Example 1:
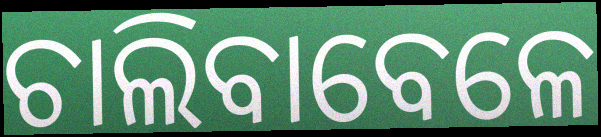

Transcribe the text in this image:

ଚାଲିବାବେଳେ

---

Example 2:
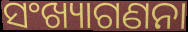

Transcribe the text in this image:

ସଂଖ୍ୟାଗଣନା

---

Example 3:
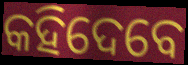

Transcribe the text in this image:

କହିଦେବେ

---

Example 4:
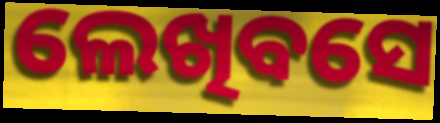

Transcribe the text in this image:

ଲେଖିବସେ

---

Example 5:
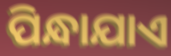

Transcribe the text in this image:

ପିନ୍ଧାଯାଏ